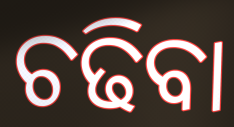
ଚଢିବା